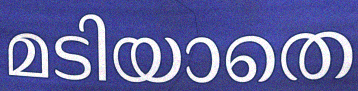
മടിയാതെ